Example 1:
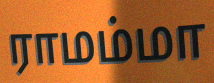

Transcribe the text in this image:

ராமம்மா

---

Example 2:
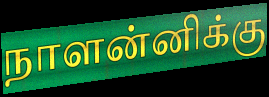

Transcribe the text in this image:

நாளன்னிக்கு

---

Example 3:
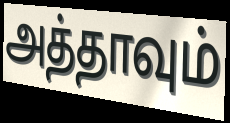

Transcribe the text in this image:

அத்தாவும்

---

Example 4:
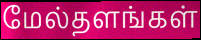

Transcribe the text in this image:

மேல்தளங்கள்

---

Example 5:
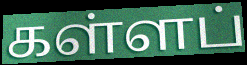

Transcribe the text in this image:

கள்ளப்